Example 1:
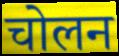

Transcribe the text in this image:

चोलन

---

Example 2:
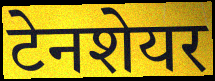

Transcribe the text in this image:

टेनशेयर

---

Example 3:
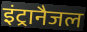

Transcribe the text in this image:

इंट्रानैजल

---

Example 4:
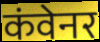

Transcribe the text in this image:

कंवेनर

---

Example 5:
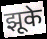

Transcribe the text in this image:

झूके